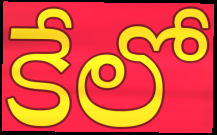
కేలో